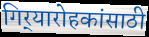
गिर्यारोहकांसाठी